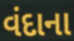
વંદાના